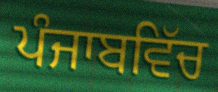
ਪੰਜਾਬਵਿੱਚ